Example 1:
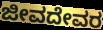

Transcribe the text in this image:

ಜೀವದೇವರ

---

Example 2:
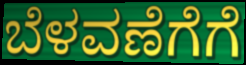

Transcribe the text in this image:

ಬೆಳವಣೆಗೆಗೆ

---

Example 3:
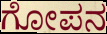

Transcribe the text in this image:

ಗೋಪನ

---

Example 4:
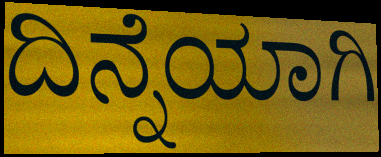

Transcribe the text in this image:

ದಿನ್ನೆಯಾಗಿ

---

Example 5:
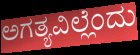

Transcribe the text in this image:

ಅಗತ್ಯವಿಲ್ಲೆಂದು